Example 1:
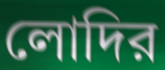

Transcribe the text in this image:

লোদির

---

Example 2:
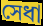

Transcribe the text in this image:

সেধা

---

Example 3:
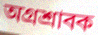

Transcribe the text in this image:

অগ্রশ্রাবক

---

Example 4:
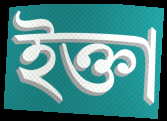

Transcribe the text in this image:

ইক্তা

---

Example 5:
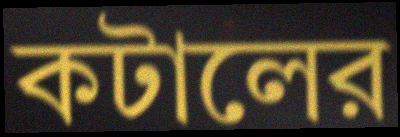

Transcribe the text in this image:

কটালের